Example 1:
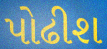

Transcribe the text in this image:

પોઢીશ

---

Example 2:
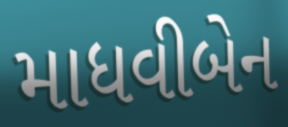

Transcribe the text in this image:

માધવીબેન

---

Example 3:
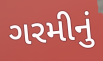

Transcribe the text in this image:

ગરમીનું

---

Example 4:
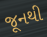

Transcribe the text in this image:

જૂનથી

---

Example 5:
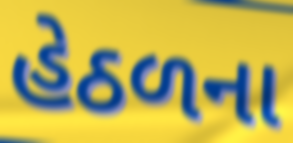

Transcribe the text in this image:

હેઠળના